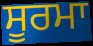
ਸੂਰਮਾ